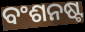
ବଂଶନଷ୍ଟ